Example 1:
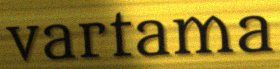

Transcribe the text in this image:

vartama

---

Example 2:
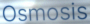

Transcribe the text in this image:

Osmosis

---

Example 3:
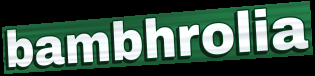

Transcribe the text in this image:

bambhrolia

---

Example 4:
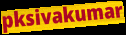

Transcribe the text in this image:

pksivakumar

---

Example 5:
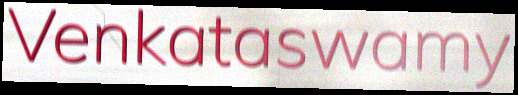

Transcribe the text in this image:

Venkataswamy